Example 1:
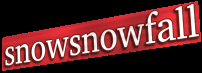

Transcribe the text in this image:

snowsnowfall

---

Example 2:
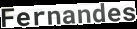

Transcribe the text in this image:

Fernandes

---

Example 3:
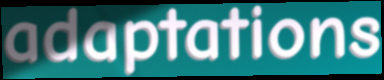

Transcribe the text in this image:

adaptations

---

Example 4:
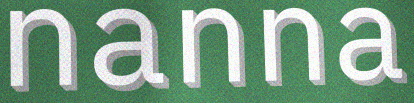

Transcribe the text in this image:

nanna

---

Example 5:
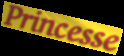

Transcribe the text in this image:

Princesse